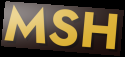
MSH